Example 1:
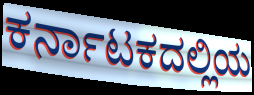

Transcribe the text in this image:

ಕರ್ನಾಟಕದಲ್ಲಿಯ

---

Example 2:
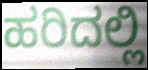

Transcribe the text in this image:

ಹರಿದಲ್ಲಿ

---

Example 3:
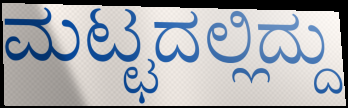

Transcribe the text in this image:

ಮಟ್ಟದಲ್ಲಿದ್ದು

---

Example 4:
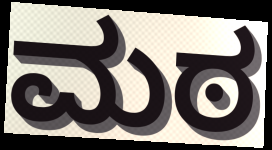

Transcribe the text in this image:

ಮಠ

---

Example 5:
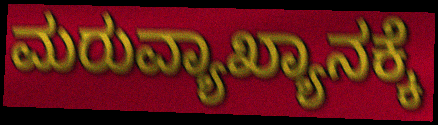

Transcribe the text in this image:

ಮರುವ್ಯಾಖ್ಯಾನಕ್ಕೆ